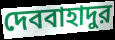
দেববাহাদুর